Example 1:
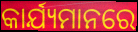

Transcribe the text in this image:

କାର୍ଯ୍ୟମାନରେ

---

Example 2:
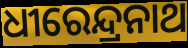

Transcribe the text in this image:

ଧୀରେନ୍ଦ୍ରନାଥ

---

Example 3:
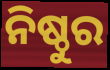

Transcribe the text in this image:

ନିଷ୍ଠୁର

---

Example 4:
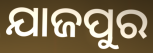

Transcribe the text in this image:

ଯାଜପୁର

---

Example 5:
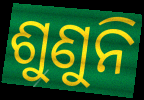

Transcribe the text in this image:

ଶୁଣୁନି